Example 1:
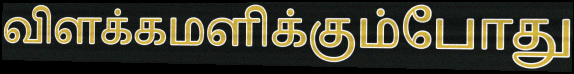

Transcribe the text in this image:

விளக்கமளிக்கும்போது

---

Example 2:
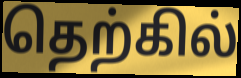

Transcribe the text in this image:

தெற்கில்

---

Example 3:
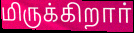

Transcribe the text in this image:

மிருக்கிறார்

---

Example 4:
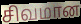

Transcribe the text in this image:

சிவமான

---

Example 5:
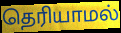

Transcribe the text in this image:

தெரியாமல்